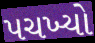
પચખ્યો